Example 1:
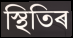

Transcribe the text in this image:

স্থিতিৰ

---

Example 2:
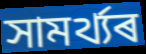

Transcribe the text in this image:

সামৰ্থ্যৰ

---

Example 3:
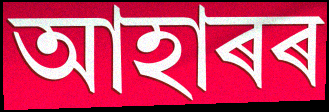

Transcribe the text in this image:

আহাৰৰ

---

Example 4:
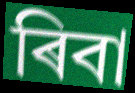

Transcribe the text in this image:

ৰিবা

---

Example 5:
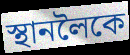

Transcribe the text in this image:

স্থানলৈকে